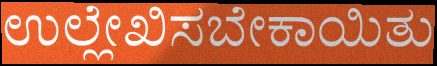
ಉಲ್ಲೇಖಿಸಬೇಕಾಯಿತು